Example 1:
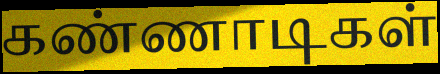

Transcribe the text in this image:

கண்ணாடிகள்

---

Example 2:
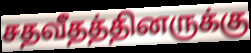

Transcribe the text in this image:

சதவீதத்தினருக்கு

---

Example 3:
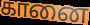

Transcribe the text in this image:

கானை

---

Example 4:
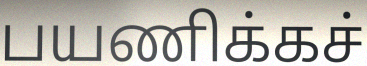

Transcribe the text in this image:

பயணிக்கச்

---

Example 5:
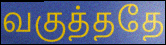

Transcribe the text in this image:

வகுத்ததே